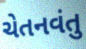
ચેતનવંતુ